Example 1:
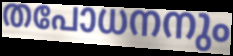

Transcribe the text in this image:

തപോധനനും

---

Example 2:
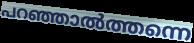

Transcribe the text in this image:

പറഞ്ഞാൽത്തന്നെ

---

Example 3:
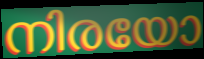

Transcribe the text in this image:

നിരയോ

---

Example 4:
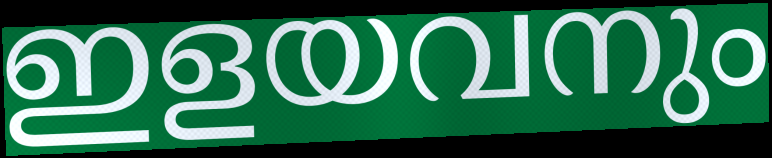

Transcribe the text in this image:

ഇളയവനും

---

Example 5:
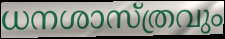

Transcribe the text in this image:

ധനശാസ്ത്രവും